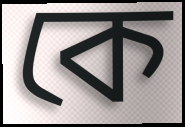
কে